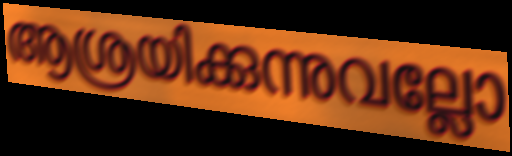
ആശ്രയിക്കുന്നുവല്ലോ